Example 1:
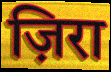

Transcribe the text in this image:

ज़िरा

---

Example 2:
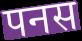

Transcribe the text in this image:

पनस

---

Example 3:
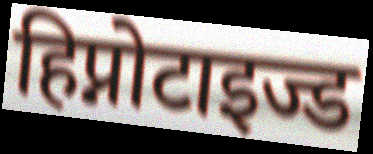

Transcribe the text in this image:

हिप्नोटाइज्ड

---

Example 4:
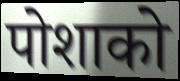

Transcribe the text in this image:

पोशाको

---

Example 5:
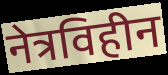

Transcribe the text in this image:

नेत्रविहीन